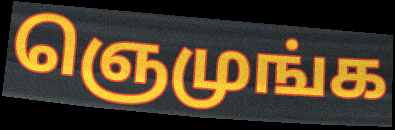
ஞெமுங்க